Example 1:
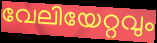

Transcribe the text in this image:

വേലിയേറ്റവും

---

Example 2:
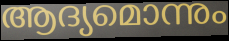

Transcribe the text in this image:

ആദ്യമൊന്നും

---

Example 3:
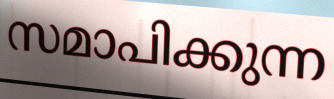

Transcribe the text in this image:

സമാപിക്കുന്ന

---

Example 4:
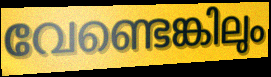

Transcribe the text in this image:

വേണ്ടെങ്കിലും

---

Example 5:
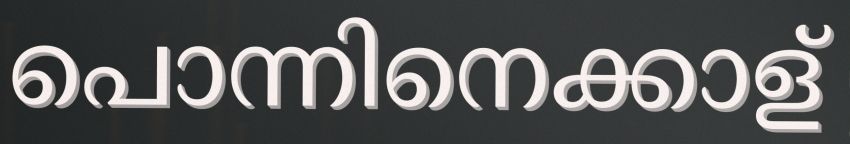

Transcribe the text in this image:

പൊന്നിനെക്കാള്